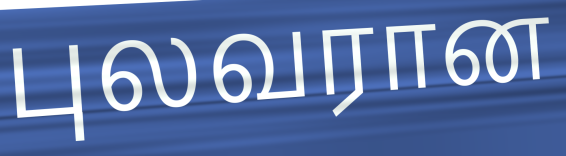
புலவரான